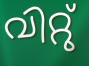
വിറ്റു്